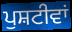
ਪੁਸ਼ਟੀਵਾਂ